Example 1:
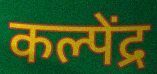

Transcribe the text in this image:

कल्पेंद्र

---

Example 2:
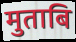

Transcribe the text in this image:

मुताबि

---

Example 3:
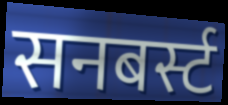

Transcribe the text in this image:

सनबर्स्ट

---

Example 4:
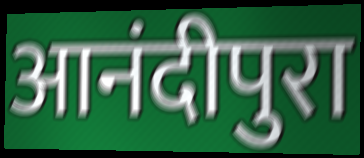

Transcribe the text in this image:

आनंदीपुरा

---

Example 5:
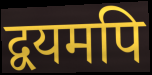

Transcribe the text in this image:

द्वयमपि